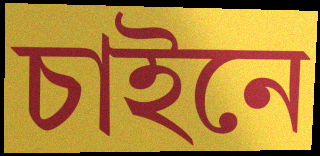
চাইনে